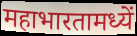
महाभारतामध्यें